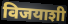
विजयाशी